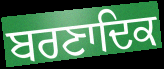
ਬਰਣਾਦਿਕ